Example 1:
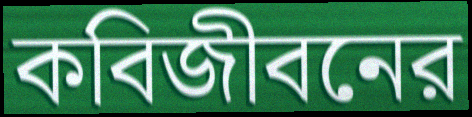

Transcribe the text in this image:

কবিজীবনের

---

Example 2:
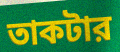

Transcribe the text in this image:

তাকটার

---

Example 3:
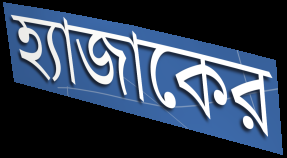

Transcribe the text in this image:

হ্যাজাকের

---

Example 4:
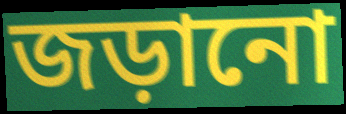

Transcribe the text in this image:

জড়ানো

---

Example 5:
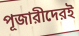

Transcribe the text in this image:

পূজারীদেরই